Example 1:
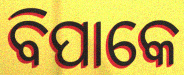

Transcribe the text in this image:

ବିପାକେ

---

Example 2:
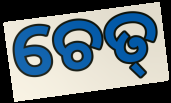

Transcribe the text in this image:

ଚେତ୍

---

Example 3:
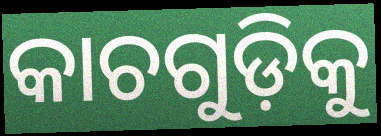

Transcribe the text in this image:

କାଚଗୁଡ଼ିକୁ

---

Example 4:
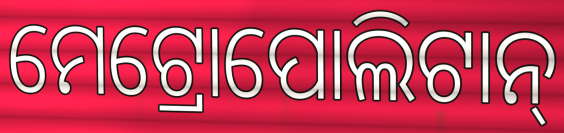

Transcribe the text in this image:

ମେଟ୍ରୋପୋଲିଟାନ୍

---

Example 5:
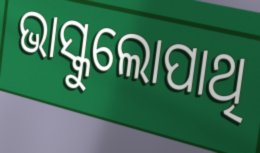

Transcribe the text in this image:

ଭାସ୍କୁଲୋପାଥି